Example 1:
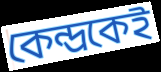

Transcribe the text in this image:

কেন্দ্রকেই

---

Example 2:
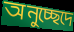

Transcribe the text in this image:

অনুচ্ছেদে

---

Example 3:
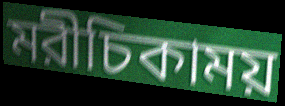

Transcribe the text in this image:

মরীচিকাময়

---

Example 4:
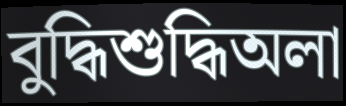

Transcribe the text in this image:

বুদ্ধিশুদ্ধিঅলা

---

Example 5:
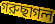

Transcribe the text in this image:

গরুছাগল